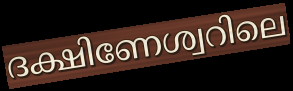
ദക്ഷിണേശ്വറിലെ